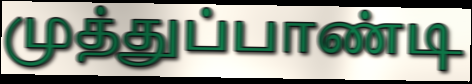
முத்துப்பாண்டி